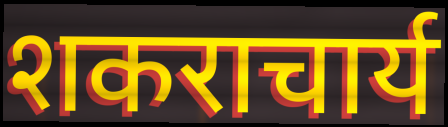
शकराचार्य